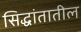
सिद्धांतातील